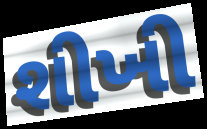
શીખી